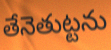
తేనెతుట్టను